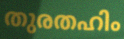
തുരതഹിം